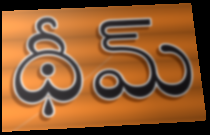
థీమ్